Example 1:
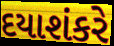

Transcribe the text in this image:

દયાશંકરે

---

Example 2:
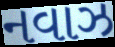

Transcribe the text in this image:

નવાઝ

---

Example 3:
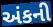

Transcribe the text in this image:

અંકની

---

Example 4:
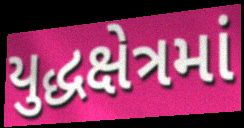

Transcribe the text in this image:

યુદ્ધક્ષેત્રમાં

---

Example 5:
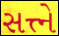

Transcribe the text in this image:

સત્ત્ને